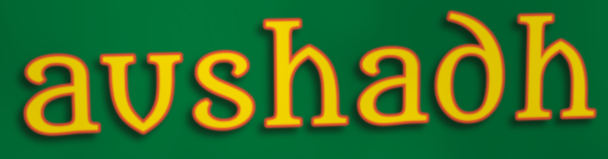
aushadh